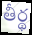
తీర్థ